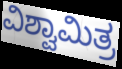
ವಿಶ್ವಾಮಿತ್ರ